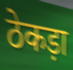
ठेकड़ा